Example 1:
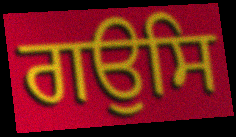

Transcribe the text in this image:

ਗਉਸਿ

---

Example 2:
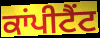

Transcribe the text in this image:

ਕਾਂਪੀਟੈਂਟ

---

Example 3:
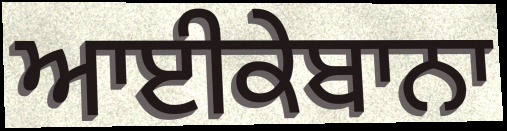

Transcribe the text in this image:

ਆਈਕੇਬਾਨਾ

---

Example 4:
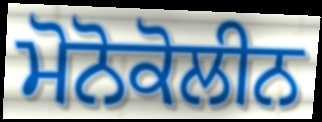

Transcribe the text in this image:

ਮੋਨੋਕੋਲੀਨ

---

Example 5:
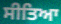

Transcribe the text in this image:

ਸੀਤਿਆ